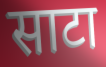
साटा